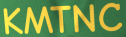
KMTNC